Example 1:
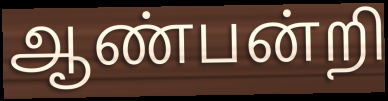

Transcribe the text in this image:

ஆண்பன்றி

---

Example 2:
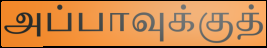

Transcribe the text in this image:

அப்பாவுக்குத்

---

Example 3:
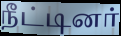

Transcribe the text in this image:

நீட்டினர்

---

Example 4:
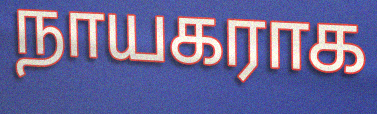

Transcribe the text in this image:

நாயகராக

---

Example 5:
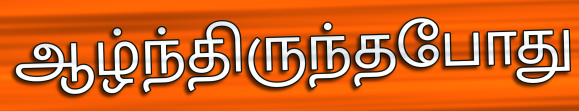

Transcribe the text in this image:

ஆழ்ந்திருந்தபோது